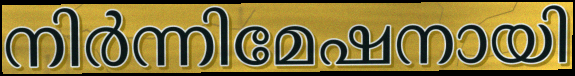
നിർന്നിമേഷനായി